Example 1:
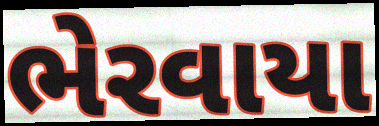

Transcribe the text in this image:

ભેરવાયા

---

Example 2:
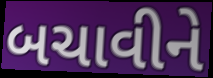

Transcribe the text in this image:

બચાવીને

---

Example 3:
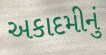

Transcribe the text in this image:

અકાદમીનું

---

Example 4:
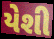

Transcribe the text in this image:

યેશી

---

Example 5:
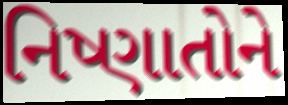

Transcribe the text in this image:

નિષ્ણાતોને